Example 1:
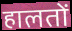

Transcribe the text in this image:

हालतों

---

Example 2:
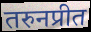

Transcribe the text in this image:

तरुनप्रीत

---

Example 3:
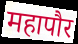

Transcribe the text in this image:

महापौर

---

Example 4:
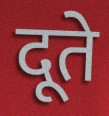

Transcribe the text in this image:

दूते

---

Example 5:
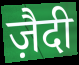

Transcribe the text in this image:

ज़ैदी